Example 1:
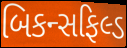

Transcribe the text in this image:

બિકન્સફિલ્ડ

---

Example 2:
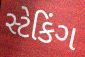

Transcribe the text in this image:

સ્ટેકિંગ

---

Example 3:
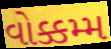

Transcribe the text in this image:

વોક્કમ્મ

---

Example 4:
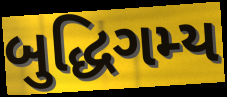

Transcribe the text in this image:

બુદ્ધિગમ્ય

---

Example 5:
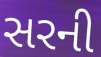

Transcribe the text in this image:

સરની